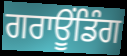
ਗਰਾਊਂਡਿੰਗ